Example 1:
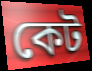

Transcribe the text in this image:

কেট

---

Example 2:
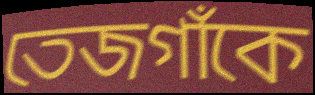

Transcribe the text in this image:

তেজগাঁকে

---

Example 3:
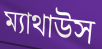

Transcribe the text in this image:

ম্যাথাউস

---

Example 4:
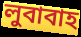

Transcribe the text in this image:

লুবাবাহ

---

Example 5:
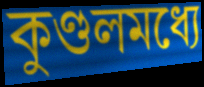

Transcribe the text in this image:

কুণ্ডলমধ্যে